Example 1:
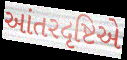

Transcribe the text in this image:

આંતરદૃષ્ટિએ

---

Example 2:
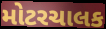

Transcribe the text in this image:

મોટરચાલક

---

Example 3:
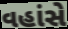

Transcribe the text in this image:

વહાંસે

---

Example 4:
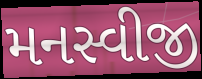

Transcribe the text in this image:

મનસ્વીજી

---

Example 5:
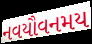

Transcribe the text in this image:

નવયૌવનમય